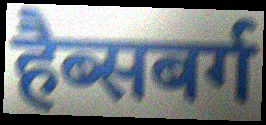
हैब्सबर्ग